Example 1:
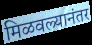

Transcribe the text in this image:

मिळवल्यानंतर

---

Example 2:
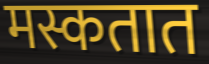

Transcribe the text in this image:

मस्कतात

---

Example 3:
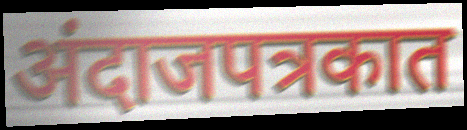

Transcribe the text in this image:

अंदाजपत्रकात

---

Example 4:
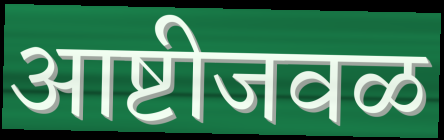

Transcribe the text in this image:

आष्टीजवळ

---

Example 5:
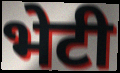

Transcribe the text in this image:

भेटी